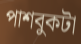
পাশবুকটা